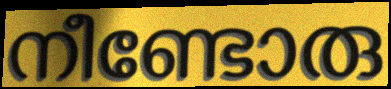
നീണ്ടോരു